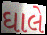
ઘાલે